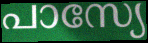
പാസ്യേ